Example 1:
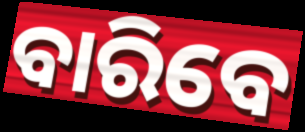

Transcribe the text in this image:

ବାରିବେ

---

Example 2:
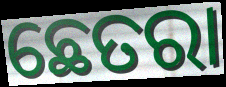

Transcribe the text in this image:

ଛେତରା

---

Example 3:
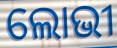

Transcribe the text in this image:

ଲୋଭୀ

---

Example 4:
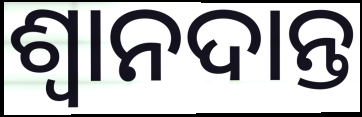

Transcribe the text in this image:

ଶ୍ଵାନଦାନ୍ତ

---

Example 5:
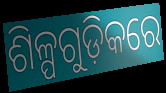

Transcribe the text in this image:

ଶିଳ୍ପଗୁଡ଼ିକରେ